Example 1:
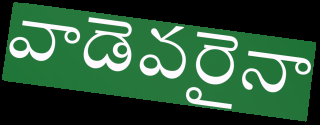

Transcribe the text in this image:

వాడెవరైనా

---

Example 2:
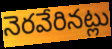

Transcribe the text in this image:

నెరవేరినట్లు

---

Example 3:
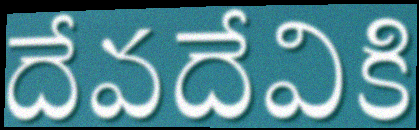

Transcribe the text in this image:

దేవదేవికి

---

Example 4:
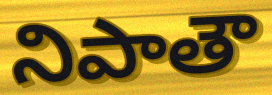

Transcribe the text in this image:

నిపాతౌ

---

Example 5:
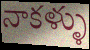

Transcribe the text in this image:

నాకళ్ళు